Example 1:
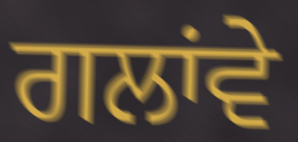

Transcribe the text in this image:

ਗਲਾਂਵੇ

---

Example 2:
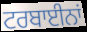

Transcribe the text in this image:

ਟਰਬਾਈਨਾਂ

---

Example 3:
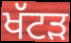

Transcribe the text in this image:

ਖੱਟੜ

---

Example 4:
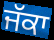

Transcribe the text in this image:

ਜੱਕਾ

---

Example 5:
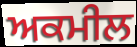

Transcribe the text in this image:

ਅਕਮੀਲ